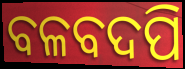
ବଳବଦପି